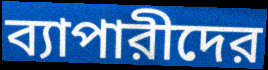
ব্যাপারীদের